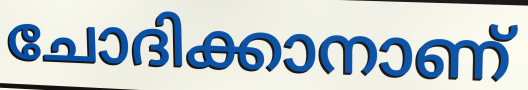
ചോദിക്കാനാണ്